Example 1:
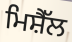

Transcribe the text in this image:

ਮਿਸ਼ੈੱਲ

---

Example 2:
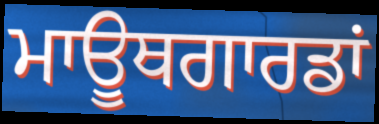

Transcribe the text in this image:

ਮਾਊਥਗਾਰਡਾਂ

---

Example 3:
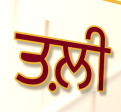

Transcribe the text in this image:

ਤਲ਼ੀ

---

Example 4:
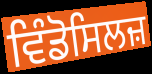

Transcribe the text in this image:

ਵਿੰਡੋਸਿਲਜ਼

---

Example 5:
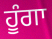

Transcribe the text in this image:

ਹੂੰਗਾ